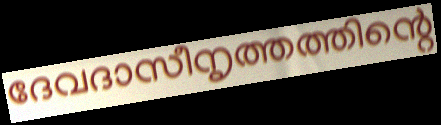
ദേവദാസീനൃത്തത്തിന്റെ